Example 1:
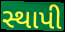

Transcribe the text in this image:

સ્થાપી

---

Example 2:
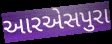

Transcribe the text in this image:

આરએસપુરા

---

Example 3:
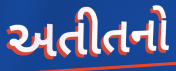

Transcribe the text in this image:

અતીતનો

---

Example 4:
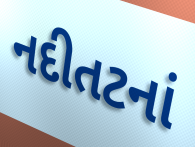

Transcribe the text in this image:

નદીતટનાં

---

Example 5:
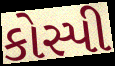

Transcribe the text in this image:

કોસ્પી